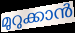
മുറുക്കാൻ